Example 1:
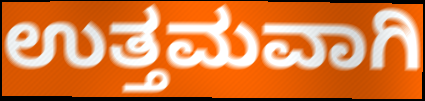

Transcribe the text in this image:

ಉತ್ತಮವಾಗಿ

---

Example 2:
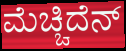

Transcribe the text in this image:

ಮೆಚ್ಚಿದೆನ್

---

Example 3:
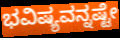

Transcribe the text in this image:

ಭವಿಷ್ಯವನ್ನಷ್ಟೇ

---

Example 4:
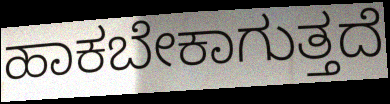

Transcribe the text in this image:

ಹಾಕಬೇಕಾಗುತ್ತದೆ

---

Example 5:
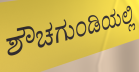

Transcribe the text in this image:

ಶೌಚಗುಂಡಿಯಲ್ಲಿ